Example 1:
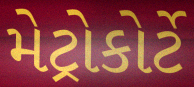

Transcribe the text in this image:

મેટ્રોકોર્ટે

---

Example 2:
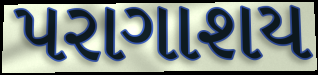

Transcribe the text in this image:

પરાગાશય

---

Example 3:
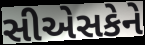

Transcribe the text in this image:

સીએસકેને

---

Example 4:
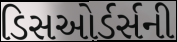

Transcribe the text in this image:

ડિસઓર્ડર્સની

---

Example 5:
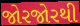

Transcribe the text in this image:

જોરજોરથી